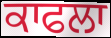
ਕਾਫਲਾ